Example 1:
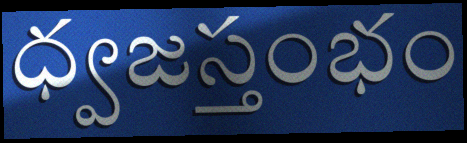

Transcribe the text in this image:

ధ్వజస్తంభం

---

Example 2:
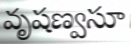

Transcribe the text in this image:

వృషణ్వసూ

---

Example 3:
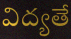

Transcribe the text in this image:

విద్యతే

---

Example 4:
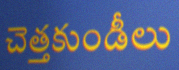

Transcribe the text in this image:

చెత్తకుండీలు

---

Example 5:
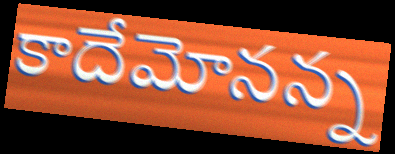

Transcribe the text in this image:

కాదేమోనన్న